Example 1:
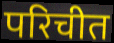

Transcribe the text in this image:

परिचीत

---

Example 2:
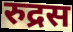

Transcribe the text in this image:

रुद्रस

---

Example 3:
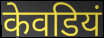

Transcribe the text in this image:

केवडियं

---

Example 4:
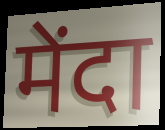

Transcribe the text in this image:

मेंदा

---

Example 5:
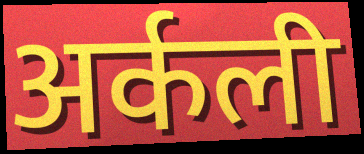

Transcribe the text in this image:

अर्कली